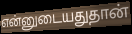
என்னுடையதுதான்